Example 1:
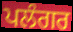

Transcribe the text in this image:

ਪਲੰਗਰ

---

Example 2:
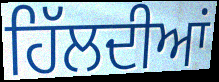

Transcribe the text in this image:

ਹਿੱਲਦੀਆਂ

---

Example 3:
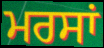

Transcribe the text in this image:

ਮਰਸਾਂ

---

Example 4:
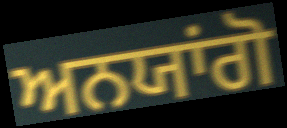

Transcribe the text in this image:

ਅਨਯਾਂਗੋ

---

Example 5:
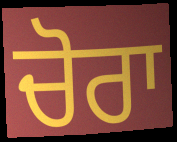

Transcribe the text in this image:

ਚੋਰਾ